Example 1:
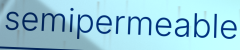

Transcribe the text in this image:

semipermeable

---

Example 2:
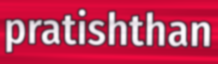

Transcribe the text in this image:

pratishthan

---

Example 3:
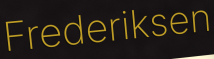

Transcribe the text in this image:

Frederiksen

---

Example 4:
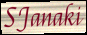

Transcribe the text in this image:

SJanaki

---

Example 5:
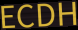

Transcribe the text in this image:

ECDH